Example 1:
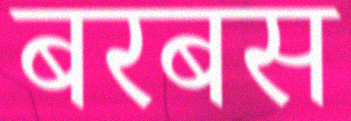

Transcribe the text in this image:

बरबस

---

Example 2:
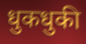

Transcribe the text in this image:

धुकधुकी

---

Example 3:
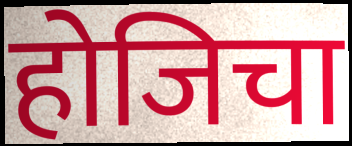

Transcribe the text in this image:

होजिचा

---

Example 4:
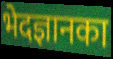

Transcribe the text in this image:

भेदज्ञानका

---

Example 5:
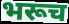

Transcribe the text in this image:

भरूच